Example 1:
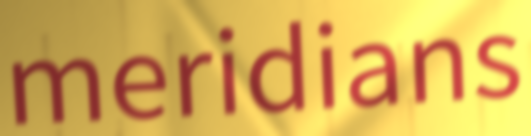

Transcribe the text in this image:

meridians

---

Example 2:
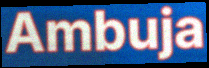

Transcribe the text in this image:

Ambuja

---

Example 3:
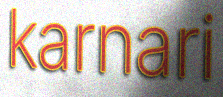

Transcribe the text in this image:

karnari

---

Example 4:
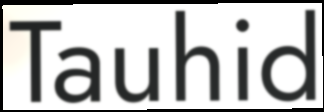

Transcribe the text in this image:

Tauhid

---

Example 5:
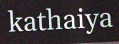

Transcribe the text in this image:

kathaiya